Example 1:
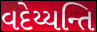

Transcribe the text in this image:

વદેય્યન્તિ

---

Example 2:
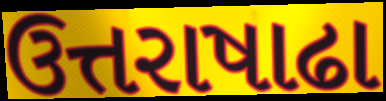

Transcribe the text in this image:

ઉત્તરાષાઢા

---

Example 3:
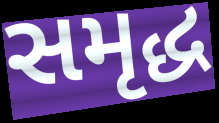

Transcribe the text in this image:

સમૃદ્ધ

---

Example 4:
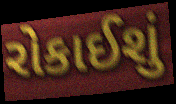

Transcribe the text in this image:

રોકાઈશું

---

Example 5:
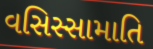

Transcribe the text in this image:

વસિસ્સામાતિ